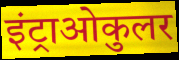
इंट्राओकुलर